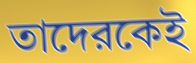
তাদেরকেই